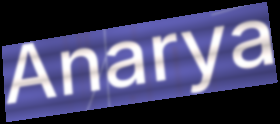
Anarya